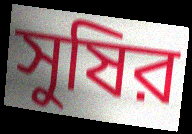
সুষির